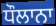
ਧੌਲਾਨਾ